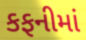
કફનીમાં